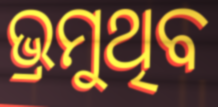
ଭ୍ରମୁଥିବ